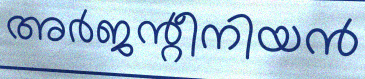
അർജന്റീനിയൻ